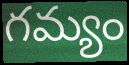
గమ్యం